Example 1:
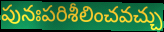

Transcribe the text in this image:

పునఃపరిశీలించవచ్చు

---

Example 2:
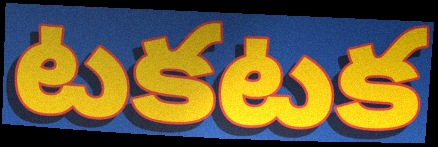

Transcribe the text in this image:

టకటక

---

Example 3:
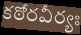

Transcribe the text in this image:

కఠోరవీర్యః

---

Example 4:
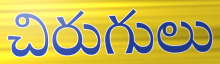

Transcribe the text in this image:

చిరుగులు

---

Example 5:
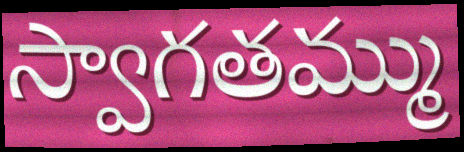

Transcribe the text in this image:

స్వాగతమ్ము